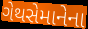
ગેથસેમાનેના